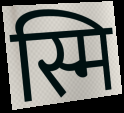
स्मि